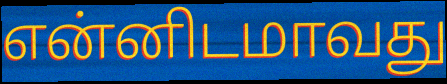
என்னிடமாவது